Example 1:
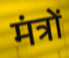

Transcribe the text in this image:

मंत्रों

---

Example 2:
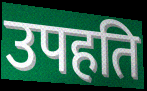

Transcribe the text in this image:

उपहति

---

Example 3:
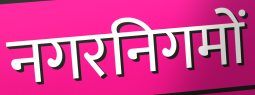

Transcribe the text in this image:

नगरनिगमों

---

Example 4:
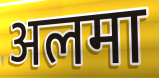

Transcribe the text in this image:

अलमा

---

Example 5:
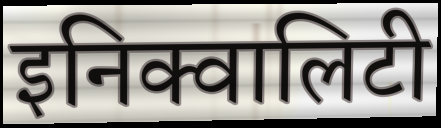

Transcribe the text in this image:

इनिक्वालिटी